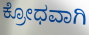
ಕ್ರೋಧವಾಗಿ